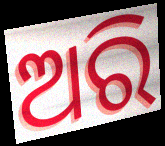
ଅରି